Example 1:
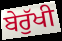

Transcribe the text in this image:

ਬੇਰੁੱਖੀ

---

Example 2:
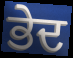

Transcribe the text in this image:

ਭੇਦ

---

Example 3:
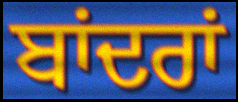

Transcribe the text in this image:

ਬਾਂਦਰਾਂ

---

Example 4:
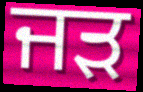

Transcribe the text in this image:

ਜੜ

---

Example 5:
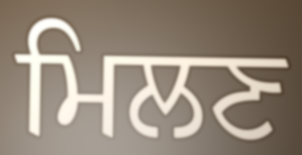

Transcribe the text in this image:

ਮਿਲਣ